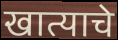
खात्याचे